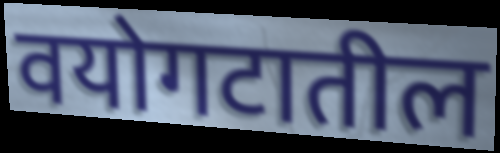
वयोगटातील